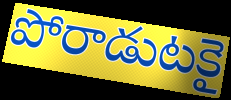
పోరాడుటకై